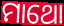
ମାଥୋ